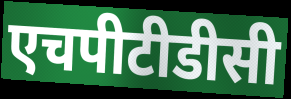
एचपीटीडीसी